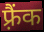
फ़्रैंक